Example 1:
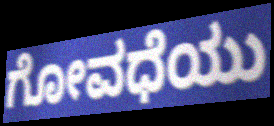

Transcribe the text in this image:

ಗೋವಧೆಯು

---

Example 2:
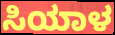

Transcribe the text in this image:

ಸಿಯಾಳ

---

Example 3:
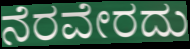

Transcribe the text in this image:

ನೆರವೇರದು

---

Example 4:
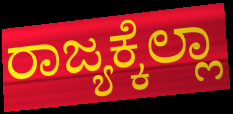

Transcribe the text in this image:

ರಾಜ್ಯಕ್ಕೆಲ್ಲಾ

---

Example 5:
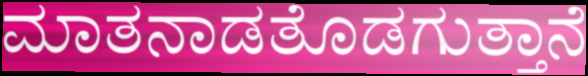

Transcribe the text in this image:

ಮಾತನಾಡತೊಡಗುತ್ತಾನೆ